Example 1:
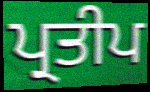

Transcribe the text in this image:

ਪ੍ਰਤੀਪ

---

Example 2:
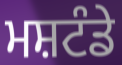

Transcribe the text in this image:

ਮਸ਼ਟੰਡੇ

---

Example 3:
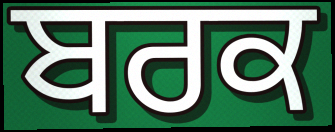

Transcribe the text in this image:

ਬਰਕ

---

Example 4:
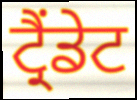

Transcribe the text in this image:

ਟ੍ਰੈਂਡੇਟ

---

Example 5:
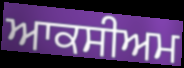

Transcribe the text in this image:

ਆਕਸੀਅਮ